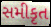
સમીકૃત